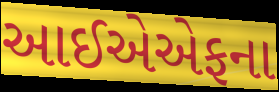
આઈએએફના